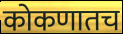
कोकणातच